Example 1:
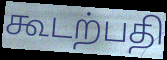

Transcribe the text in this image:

கூடற்பதி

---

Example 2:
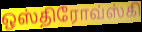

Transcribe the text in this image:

ஒஸ்திரோவ்ஸ்கி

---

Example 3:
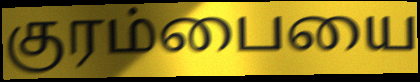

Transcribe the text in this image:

குரம்பையை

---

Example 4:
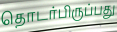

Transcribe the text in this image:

தொடர்பிருப்பது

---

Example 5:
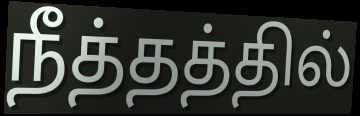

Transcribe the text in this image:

நீத்தத்தில்